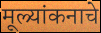
मूल्यांकनाचे